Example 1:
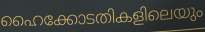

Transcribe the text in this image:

ഹൈക്കോടതികളിലെയും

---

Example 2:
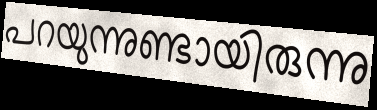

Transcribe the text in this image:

പറയുന്നുണ്ടായിരുന്നു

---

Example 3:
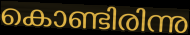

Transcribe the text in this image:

കൊണ്ടിരിന്നു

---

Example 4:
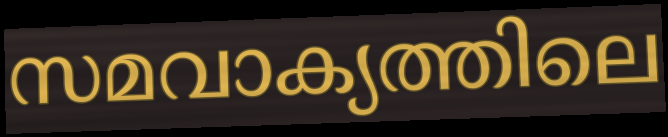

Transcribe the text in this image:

സമവാക്യത്തിലെ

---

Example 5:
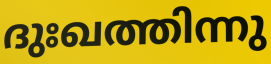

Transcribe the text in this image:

ദുഃഖത്തിന്നു